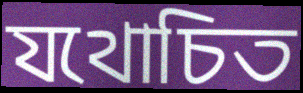
যথোচিত